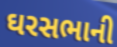
ઘરસભાની